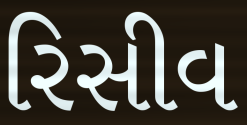
રિસીવ